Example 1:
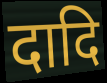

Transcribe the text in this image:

दादि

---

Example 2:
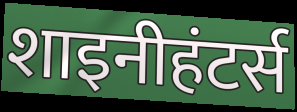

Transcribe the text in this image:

शाइनीहंटर्स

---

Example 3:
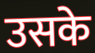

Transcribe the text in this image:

उसके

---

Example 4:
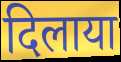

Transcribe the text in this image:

दिलाया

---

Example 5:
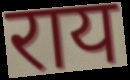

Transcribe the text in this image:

राय